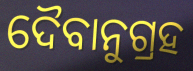
ଦୈବାନୁଗ୍ରହ